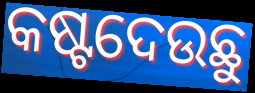
କଷ୍ଟଦେଉଛୁ